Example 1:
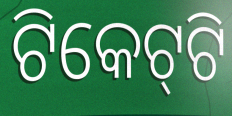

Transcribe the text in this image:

ଟିକେଟ୍‌ଟି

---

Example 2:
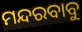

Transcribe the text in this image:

ମନ୍ଦରବାବୁ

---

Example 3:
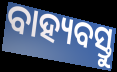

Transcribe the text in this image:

ବାହ୍ୟବସ୍ତୁ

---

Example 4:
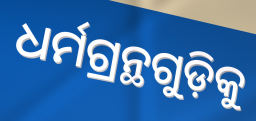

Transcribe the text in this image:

ଧର୍ମଗ୍ରନ୍ଥଗୁଡ଼ିକୁ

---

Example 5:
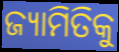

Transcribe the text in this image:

ଜ୍ୟାମିତିକୁ